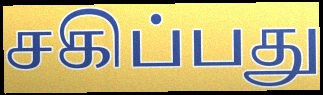
சகிப்பது